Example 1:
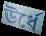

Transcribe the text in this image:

ঊর্ধে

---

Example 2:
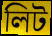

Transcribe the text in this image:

লিট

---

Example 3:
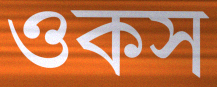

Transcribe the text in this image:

ওকস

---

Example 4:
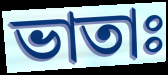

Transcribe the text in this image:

ভাতাঃ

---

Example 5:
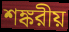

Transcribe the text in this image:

শঙ্করীয়